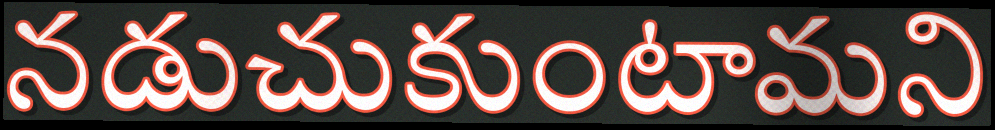
నడుచుకుంటామని